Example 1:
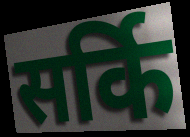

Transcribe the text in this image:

सर्कि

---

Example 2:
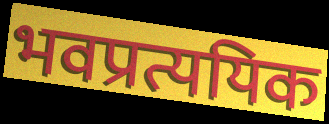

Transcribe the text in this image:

भवप्रत्ययिक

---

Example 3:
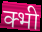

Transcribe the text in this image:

क्भी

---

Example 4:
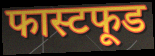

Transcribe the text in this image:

फास्‍टफूड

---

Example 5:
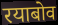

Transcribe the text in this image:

रयाबोव